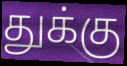
துக்கு